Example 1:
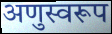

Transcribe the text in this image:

अणुस्वरूप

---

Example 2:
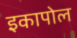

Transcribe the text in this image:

इकापोल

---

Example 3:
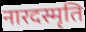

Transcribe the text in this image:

नारदस्मृति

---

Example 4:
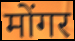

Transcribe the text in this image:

मोंगर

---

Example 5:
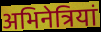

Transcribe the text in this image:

अभिनेत्रियां